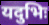
यदुभिः